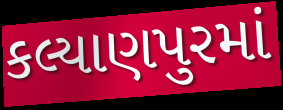
કલ્યાણપુરમાં